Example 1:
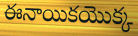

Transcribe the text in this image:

ఈనాయికయొక్క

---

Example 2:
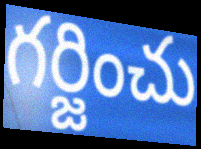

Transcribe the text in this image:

గర్జించు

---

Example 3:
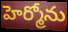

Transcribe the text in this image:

హెర్మోను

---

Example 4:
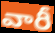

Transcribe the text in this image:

వారీ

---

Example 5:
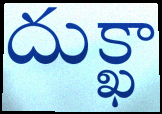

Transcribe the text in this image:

దుక్ఖా